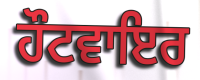
ਹੌਟਵਾਇਰ